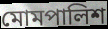
মোমপালিশ